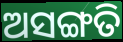
ଅସଙ୍ଗତି